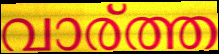
വാര്ത്ത